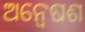
ଅନ୍ୱେଷଶ